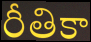
రీతికా